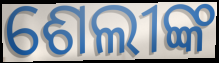
ଶେଲୀଙ୍କ